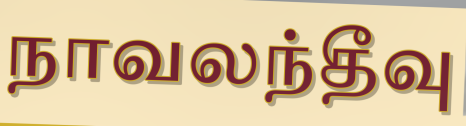
நாவலந்தீவு